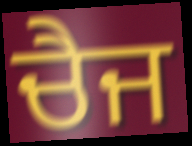
ਚੈਜ